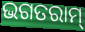
ଭଗତରାମ୍